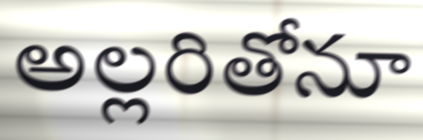
అల్లరితోనూ